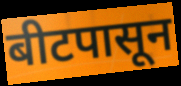
बीटपासून